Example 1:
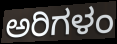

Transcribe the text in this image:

ಅರಿಗಳಂ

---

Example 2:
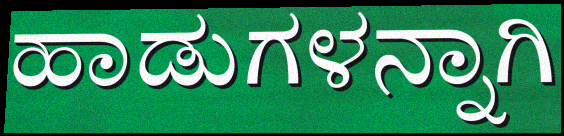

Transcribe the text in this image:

ಹಾಡುಗಳನ್ನಾಗಿ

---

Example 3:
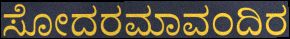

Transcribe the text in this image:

ಸೋದರಮಾವಂದಿರ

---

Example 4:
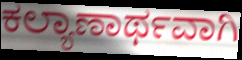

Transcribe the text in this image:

ಕಲ್ಯಾಣಾರ್ಥವಾಗಿ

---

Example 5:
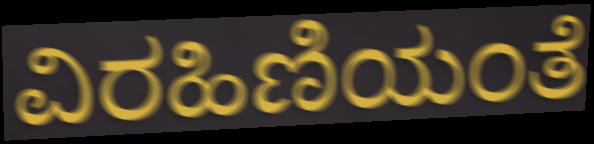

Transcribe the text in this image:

ವಿರಹಿಣಿಯಂತೆ